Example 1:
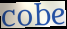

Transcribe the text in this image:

cobe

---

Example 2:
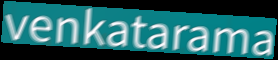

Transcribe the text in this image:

venkatarama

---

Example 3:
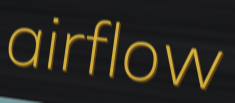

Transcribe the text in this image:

airflow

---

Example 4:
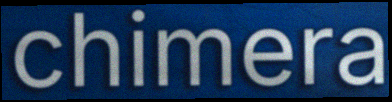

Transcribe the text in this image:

chimera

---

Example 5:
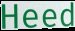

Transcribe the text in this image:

Heed